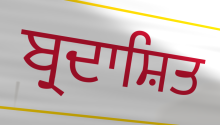
ਬ੍ਰਦਾਸ਼ਿਤ